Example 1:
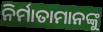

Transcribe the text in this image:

ନିର୍ମାତାମାନଙ୍କୁ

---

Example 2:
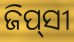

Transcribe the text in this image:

ଜିପ୍‍ସୀ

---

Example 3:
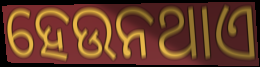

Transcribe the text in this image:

ହେଉନଥାଏ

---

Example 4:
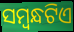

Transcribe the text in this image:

ସମ୍ବନ୍ଧଟିଏ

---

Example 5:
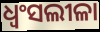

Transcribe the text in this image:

ଧ୍ୱଂସଲୀଳା